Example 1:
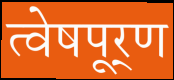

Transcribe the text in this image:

त्वेषपूर्ण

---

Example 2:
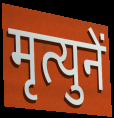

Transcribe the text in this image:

मृत्युनें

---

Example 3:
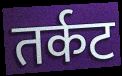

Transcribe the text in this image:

तर्कट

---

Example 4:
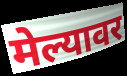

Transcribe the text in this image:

मेल्यावर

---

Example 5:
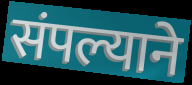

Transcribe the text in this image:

संपल्याने